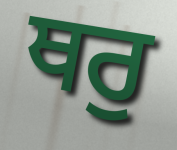
ਥਰੁ